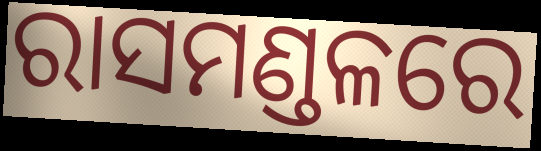
ରାସମଣ୍ଡଳରେ